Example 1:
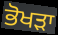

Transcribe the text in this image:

ਭੋਖੜਾ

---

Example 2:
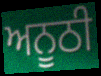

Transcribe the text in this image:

ਅਨੂਠੀ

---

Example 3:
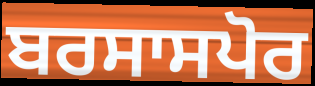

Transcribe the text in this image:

ਬਰਸਾਸਪੋਰ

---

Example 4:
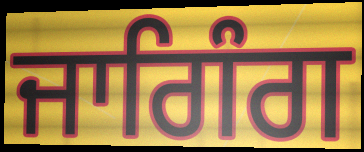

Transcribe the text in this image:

ਜਾਗਿੰਗ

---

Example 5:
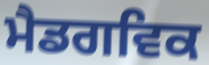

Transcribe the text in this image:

ਮੈਡਗਵਿਕ